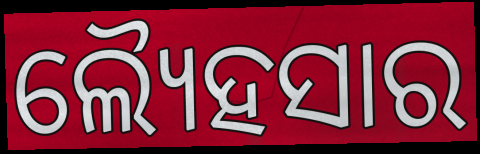
ଲ୍ୟୈହସାର